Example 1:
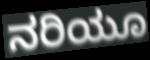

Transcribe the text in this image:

ನರಿಯೂ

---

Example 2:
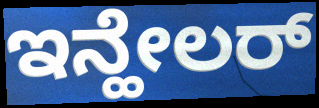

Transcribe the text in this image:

ಇನ್ಹೇಲರ್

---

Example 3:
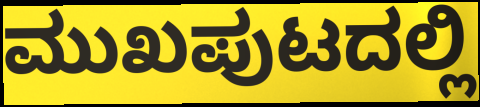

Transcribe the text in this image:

ಮುಖಪುಟದಲ್ಲಿ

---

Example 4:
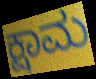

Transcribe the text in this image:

ಕ್ಷಾಮ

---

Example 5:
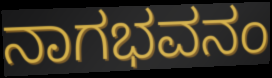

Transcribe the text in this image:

ನಾಗಭವನಂ